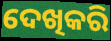
ଦେଖିକରି